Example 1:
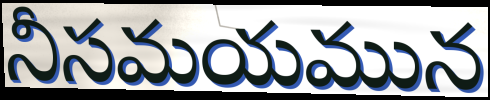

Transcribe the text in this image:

నీసమయమున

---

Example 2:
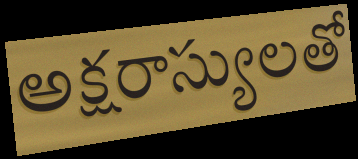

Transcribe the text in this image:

అక్షరాస్యులతో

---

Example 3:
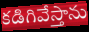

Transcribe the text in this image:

కడిగివేస్తాను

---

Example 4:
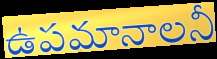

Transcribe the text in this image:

ఉపమానాలనీ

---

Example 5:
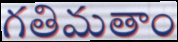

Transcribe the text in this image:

గతిమతాం